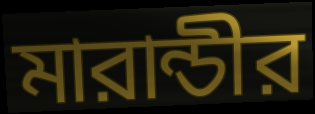
মারান্ডীর